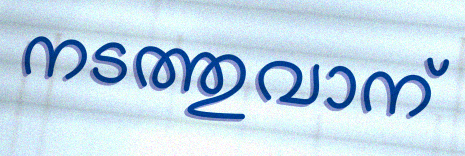
നടത്തുവാന്